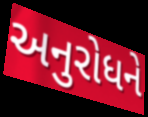
અનુરોધને